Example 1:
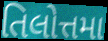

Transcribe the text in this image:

તિલોત્તમા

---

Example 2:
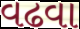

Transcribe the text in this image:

વઢવા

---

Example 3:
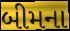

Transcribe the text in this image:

બીમના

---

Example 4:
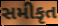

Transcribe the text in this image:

સમીકૃત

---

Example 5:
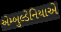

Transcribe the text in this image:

એમ્બુલ્ડેનિયાએ